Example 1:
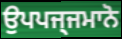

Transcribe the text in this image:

ਉਪਪਜ੍ਜਮਾਨੋ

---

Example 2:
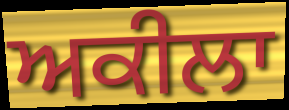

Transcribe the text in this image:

ਅਕੀਲਾ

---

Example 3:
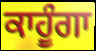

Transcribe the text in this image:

ਕਾਹੂੰਗਾ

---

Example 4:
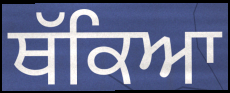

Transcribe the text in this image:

ਥੱਕਿਆ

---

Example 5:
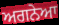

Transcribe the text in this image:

ਅਗਨੇਆ